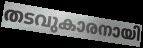
തടവുകാരനായി